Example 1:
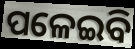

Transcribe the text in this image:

ପଳେଇବି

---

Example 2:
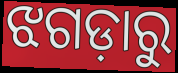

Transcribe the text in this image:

ଝଗଡ଼ାରୁ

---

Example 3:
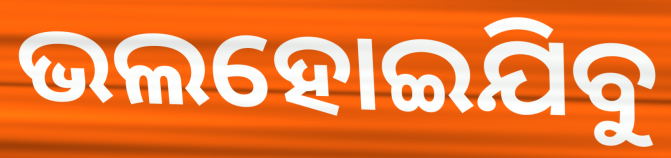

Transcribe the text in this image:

ଭଲହୋଇଯିବୁ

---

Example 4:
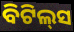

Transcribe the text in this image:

ବିଟିଲ୍‌ସ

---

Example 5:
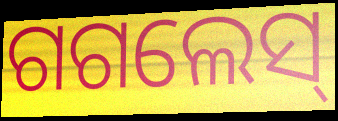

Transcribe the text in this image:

ଗଗଲେସ୍